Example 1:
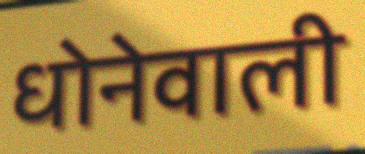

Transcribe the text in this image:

धोनेवाली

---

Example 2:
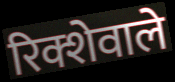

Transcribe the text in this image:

रिक्‍शेवाले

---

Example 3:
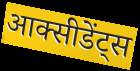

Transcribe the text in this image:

आक्सीडेंट्स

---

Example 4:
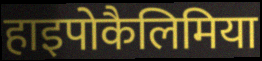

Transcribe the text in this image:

हाइपोकैलिमिया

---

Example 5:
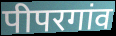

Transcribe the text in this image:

पीपरगांव